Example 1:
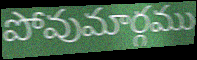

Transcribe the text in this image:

పోవుమార్గము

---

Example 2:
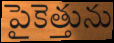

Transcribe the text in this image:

పైకెత్తును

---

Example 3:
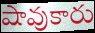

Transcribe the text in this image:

షావుకారు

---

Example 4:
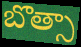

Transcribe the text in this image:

బొత్సా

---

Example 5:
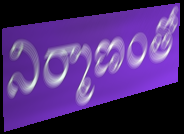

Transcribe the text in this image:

నిర్మాణంతో